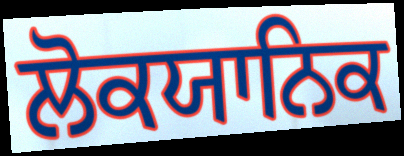
ਲੋਕਯਾਨਿਕ